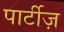
पार्टीज़